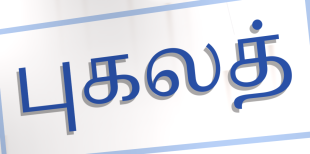
புகலத்